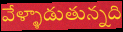
వేళ్ళాడుతున్నది